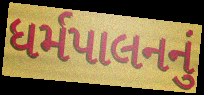
ધર્મપાલનનું